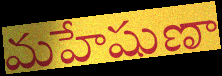
మహేషుణా